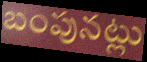
బంపునట్లు